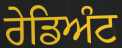
ਰੇਡਿਅੰਟ